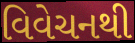
વિવેચનથી